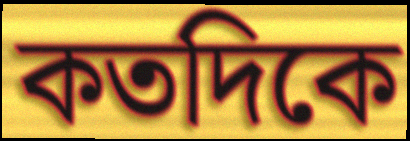
কতদিকে